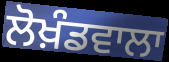
ਲੋਖ਼ੰਡਵਾਲਾ